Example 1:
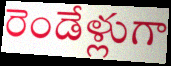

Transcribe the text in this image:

రెండేళ్లుగా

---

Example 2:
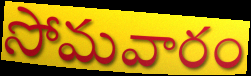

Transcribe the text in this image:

సోమవారం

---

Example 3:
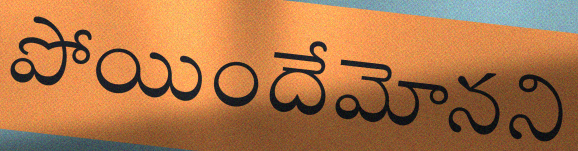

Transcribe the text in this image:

పోయిందేమోనని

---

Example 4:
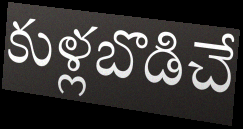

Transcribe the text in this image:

కుళ్లబొడిచే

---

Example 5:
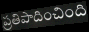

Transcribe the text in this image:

ప్రతిపాదించింది